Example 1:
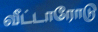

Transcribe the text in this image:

வீட்டாரோடு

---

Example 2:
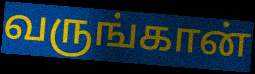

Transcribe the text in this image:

வருங்கான்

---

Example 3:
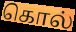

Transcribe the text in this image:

கொல்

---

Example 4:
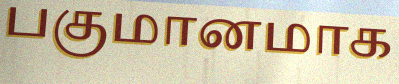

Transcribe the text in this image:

பகுமானமாக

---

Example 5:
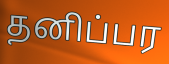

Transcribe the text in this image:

தனிப்பர